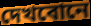
দেখবোনে